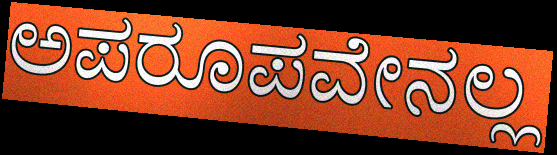
ಅಪರೂಪವೇನಲ್ಲ